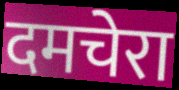
दमचेरा